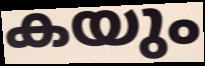
കയും